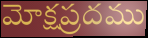
మోక్షప్రదము